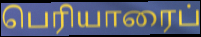
பெரியாரைப்